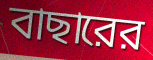
বাছারের